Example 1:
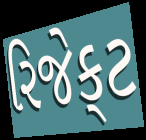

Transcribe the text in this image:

રિજેક્‌ટ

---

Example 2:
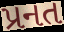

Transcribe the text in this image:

પ્રનત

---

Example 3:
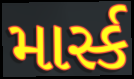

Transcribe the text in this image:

માર્સ્ક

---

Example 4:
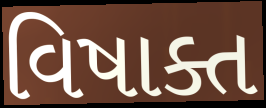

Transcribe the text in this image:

વિષાક્ત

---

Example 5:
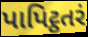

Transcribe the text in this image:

પાપિટ્ઠતરં